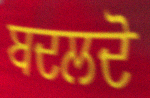
ਬਦਲਦੋ